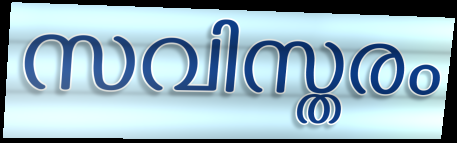
സവിസ്തരം